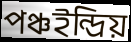
পঞ্চইন্দ্রিয়